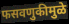
फसवणुकीमुळे